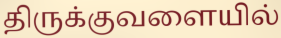
திருக்குவளையில்